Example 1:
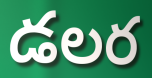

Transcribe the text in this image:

డలర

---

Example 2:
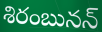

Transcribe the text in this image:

శిరంబునన్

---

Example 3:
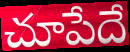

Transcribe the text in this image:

చూపేదే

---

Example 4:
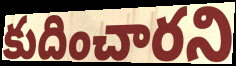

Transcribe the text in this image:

కుదించారని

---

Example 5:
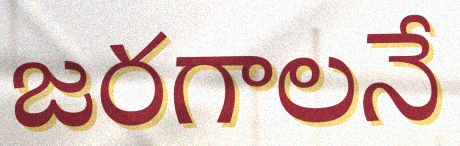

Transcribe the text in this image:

జరగాలనే